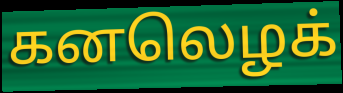
கனலெழக்